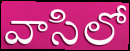
వాసిలో